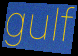
gulf